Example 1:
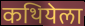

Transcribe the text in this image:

कथियेला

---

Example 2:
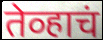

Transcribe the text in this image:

तेव्हाचं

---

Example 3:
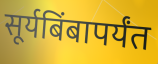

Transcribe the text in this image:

सूर्यबिंबापर्यंत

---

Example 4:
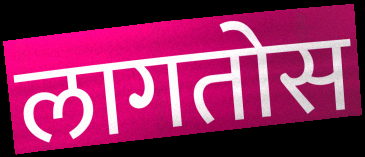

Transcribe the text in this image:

लागतोस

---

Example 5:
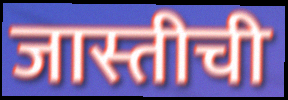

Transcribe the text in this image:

जास्तीची